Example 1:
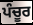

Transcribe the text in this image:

ਪੰਚੂਰ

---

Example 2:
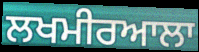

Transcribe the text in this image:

ਲਖਮੀਰਆਲਾ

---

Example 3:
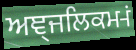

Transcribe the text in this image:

ਅਞ੍ਜਲਿਕਮ੍ਮਂ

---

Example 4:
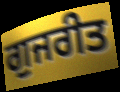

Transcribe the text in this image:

ਗੁਜਰੀਤ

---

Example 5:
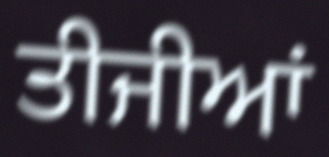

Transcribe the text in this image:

ਤੀਜੀਆਂ